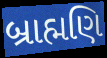
બ્રાહ્મણિ